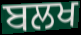
ਬਲਖ